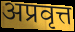
अप्रवृत्त